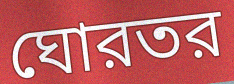
ঘোরতর